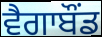
ਵੈਗਾਬੌਂਡ